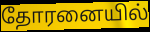
தோரனையில்